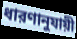
ধারণানুযায়ী